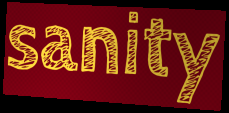
sanity